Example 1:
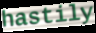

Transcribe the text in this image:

hastily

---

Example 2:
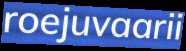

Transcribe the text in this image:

roejuvaarii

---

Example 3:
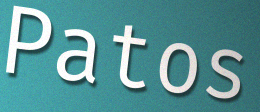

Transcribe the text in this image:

Patos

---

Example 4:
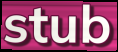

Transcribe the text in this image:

stub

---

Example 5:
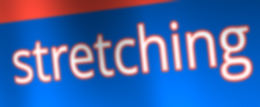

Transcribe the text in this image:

stretching